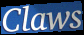
Claws